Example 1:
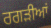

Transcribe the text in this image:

ਰਗੜੀਆਂ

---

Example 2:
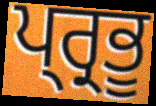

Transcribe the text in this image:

ਪ੍ਰ੍ਰਭੂ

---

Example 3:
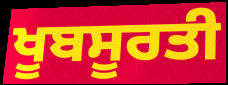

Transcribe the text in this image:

ਖੂਬਸੂਰਤੀ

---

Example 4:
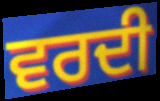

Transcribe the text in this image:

ਵਰਦੀ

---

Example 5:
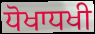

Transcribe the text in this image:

ਧੋਖਾਧਖੀ